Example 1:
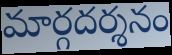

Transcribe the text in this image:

మార్గదర్శనం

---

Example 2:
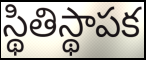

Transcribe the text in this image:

స్థితిస్థాపక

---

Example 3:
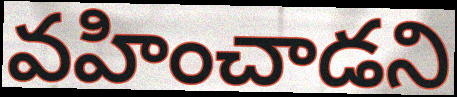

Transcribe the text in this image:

వహించాడని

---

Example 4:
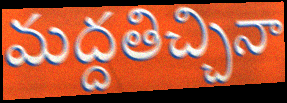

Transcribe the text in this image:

మద్దతిచ్చినా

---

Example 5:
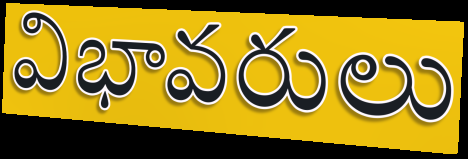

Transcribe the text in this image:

విభావరులు